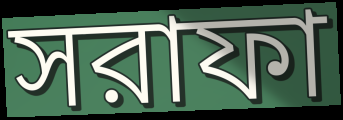
সরাফা